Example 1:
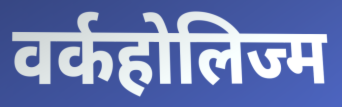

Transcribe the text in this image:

वर्कहोलिज्म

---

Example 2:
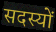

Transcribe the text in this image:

सदस्यों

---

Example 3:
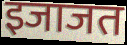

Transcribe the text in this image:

इजाजत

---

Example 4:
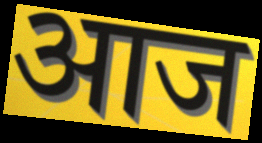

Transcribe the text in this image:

आज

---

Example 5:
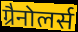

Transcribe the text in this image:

ग्रैनोलर्स